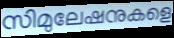
സിമുലേഷനുകളെ